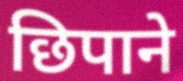
छिपाने